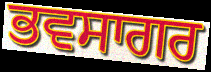
ਭਵਸਾਗਰ